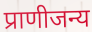
प्राणीजन्य